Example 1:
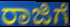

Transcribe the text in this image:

ರಾಜಿಗೆ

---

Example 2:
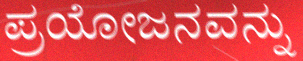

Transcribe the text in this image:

ಪ್ರಯೋಜನವನ್ನು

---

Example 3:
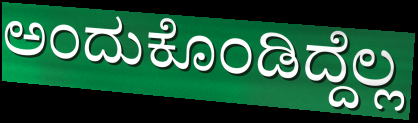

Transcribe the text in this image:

ಅಂದುಕೊಂಡಿದ್ದೆಲ್ಲ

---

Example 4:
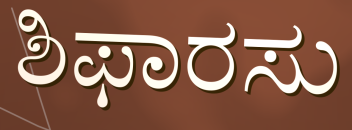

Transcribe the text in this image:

ಶಿಫಾರಸು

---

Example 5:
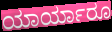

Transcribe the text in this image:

ಯಾರ್ಯಾರೂ